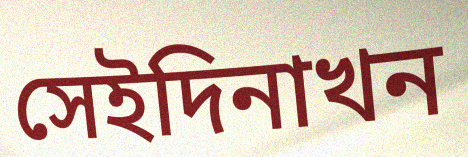
সেইদিনাখন